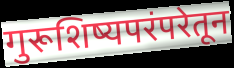
गुरूशिष्यपरंपरेतून